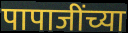
पापाजींच्या